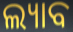
ଲ୍ୟାବ